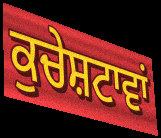
ਕੁਚੇਸ਼ਟਾਵਾਂ